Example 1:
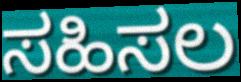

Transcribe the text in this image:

ಸಹಿಸಲ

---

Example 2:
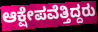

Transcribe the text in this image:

ಆಕ್ಷೇಪವೆತ್ತಿದ್ದರು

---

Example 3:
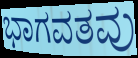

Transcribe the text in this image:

ಭಾಗವತವು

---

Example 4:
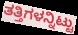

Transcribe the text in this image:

ತತ್ತಿಗಳನ್ನಿಟ್ಟು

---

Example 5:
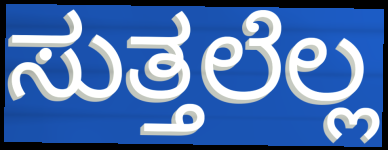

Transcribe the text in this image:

ಸುತ್ತಲೆಲ್ಲ